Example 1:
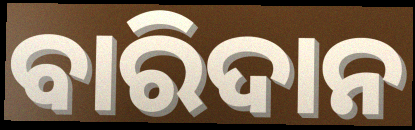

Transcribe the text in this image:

ବାରିଦାନ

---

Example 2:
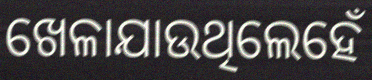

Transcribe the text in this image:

ଖେଳାଯାଉଥିଲେହେଁ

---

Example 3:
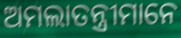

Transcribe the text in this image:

ଅମଲାତନ୍ତ୍ରୀମାନେ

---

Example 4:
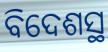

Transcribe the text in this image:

ବିଦେଶସ୍ଥ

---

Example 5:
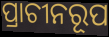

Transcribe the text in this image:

ପ୍ରାଚୀନରୂପ